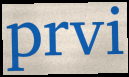
prvi